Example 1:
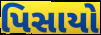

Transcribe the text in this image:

પિસાયો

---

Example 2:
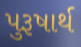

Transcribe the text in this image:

પુરૂષાર્થ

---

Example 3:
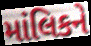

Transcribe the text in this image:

માંલિકને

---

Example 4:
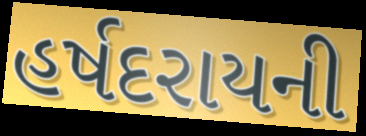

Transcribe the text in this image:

હર્ષદરાયની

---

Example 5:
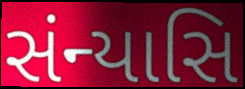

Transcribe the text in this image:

સંન્યાસિ